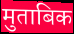
मुताबिक